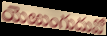
యెఱుంగుదువో